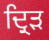
ਦ੍ਰਿਡ਼